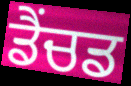
ਡੈਂਚਡ